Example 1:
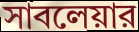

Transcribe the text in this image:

সাবলেয়ার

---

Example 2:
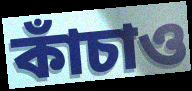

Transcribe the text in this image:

কাঁচাও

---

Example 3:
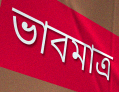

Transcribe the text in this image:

ভাবমাত্র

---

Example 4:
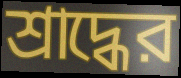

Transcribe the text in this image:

শ্রাদ্ধের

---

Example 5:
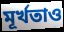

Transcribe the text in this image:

মূর্খতাও